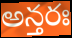
అన్తరః